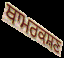
ਥਾਮਰਕਸ਼ਣ